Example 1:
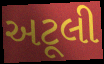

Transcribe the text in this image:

અટૂલી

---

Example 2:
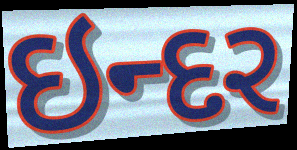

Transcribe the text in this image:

ઇન્દર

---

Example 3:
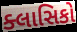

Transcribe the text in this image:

ક્લાસિકો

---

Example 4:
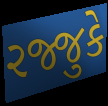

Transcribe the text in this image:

રજ્જુકે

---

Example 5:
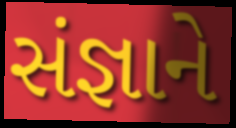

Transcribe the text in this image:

સંજ્ઞાને